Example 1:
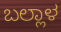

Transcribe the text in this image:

ಬಲ್ಲಾಳ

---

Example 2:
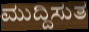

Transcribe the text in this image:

ಮುದ್ದಿಸುತ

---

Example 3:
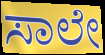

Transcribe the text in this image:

ಸಾಲೇ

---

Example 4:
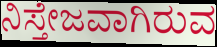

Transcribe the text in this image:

ನಿಸ್ತೇಜವಾಗಿರುವ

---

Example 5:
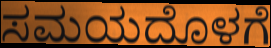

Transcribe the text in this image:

ಸಮಯದೊಳಗೆ